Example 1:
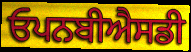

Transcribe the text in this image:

ਓਪਨਬੀਐਸਡੀ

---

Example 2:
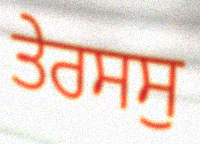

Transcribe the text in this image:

ਤੇਰਸਸੁ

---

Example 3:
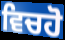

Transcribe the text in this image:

ਵਿਚਹੋ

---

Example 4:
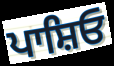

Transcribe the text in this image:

ਪਾਸ਼ਿਓ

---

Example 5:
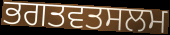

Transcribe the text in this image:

ਭਗਤਵਤਸਲਮ